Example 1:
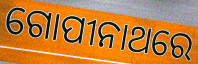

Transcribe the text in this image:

ଗୋପୀନାଥରେ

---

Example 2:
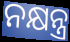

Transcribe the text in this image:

ନକ୍ଷନ୍ତ୍ର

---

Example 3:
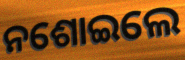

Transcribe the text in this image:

ନଶୋଇଲେ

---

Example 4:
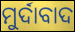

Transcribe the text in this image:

ମୁର୍ଦାବାଦ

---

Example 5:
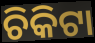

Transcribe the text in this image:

ଚିକିଟା